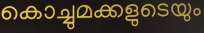
കൊച്ചുമക്കളുടെയും